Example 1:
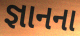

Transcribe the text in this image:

જ્ઞાનના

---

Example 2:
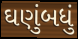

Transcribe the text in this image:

ઘણુંબધું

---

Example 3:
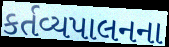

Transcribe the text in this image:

કર્તવ્યપાલનના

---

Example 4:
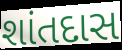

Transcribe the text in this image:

શાંતદાસ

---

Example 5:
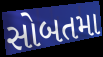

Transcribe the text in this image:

સોબતમા